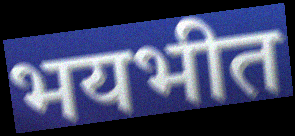
भयभीत